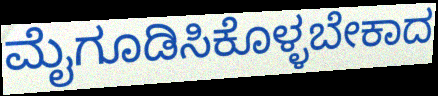
ಮೈಗೂಡಿಸಿಕೊಳ್ಳಬೇಕಾದ